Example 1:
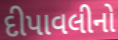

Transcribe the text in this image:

દીપાવલીનો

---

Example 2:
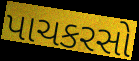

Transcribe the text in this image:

પાચકરસો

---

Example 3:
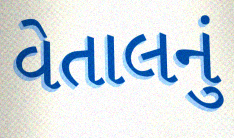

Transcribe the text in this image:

વેતાલનું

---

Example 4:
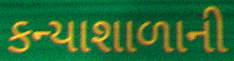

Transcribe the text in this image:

કન્યાશાળાની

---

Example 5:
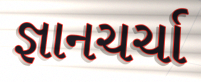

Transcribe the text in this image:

જ્ઞાનચર્ચા